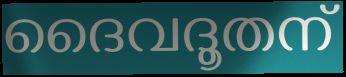
ദൈവദൂതന്